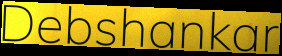
Debshankar